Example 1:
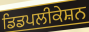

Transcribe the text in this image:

ਡਿਡਪਲੀਕੇਸ਼ਨ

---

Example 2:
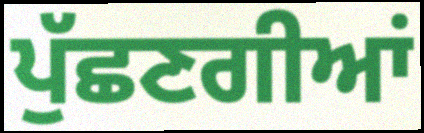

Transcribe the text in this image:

ਪੁੱਛਣਗੀਆਂ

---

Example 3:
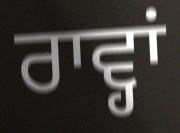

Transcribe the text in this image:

ਰਾਵ੍ਹਾਂ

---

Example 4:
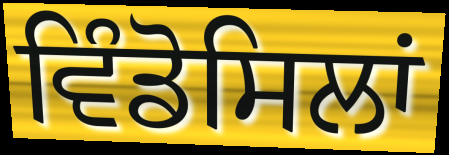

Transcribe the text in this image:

ਵਿੰਡੋਸਿਲਾਂ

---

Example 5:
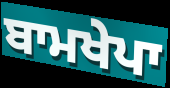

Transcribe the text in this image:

ਬਾਮਖੇਪਾ